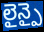
లైన్పై